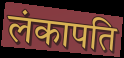
लंकापति